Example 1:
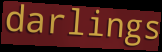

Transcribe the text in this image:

darlings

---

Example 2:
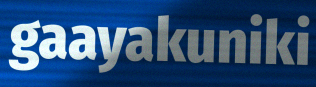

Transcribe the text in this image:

gaayakuniki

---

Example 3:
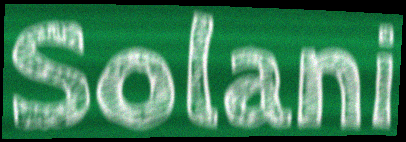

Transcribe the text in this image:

Solani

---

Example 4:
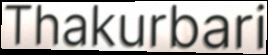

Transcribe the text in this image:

Thakurbari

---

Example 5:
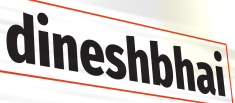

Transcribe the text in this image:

dineshbhai